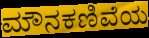
ಮೌನಕಣಿವೆಯ